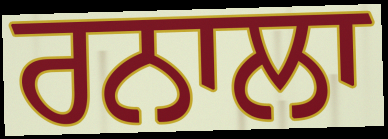
ਰਨਾਲਾ